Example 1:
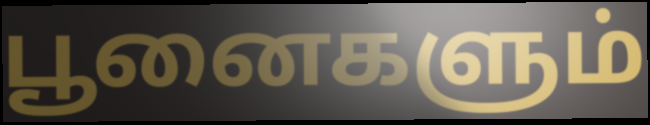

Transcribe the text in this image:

பூனைகளும்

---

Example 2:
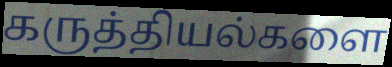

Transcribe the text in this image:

கருத்தியல்களை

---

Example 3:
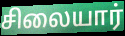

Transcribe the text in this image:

சிலையார்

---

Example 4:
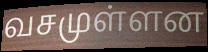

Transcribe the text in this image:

வசமுள்ளன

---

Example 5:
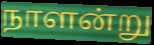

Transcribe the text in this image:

நாளன்று